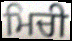
ਮਿਚੀ